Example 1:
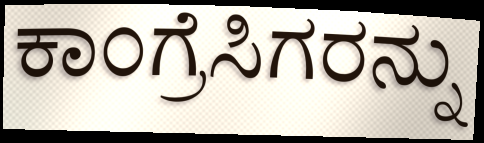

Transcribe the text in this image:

ಕಾಂಗ್ರೆಸಿಗರನ್ನು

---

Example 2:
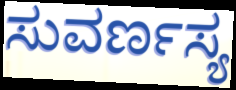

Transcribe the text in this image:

ಸುವರ್ಣಸ್ಯ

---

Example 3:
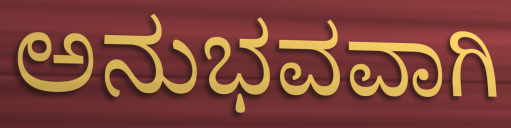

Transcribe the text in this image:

ಅನುಭವವಾಗಿ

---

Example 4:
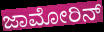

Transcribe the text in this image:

ಜಾಮೋರಿನ್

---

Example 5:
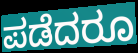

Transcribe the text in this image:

ಪಡೆದರೂ